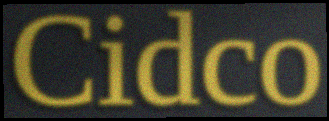
Cidco